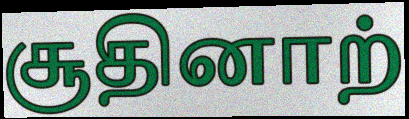
சூதினாற்